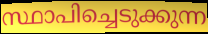
സ്ഥാപിച്ചെടുക്കുന്ന